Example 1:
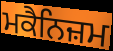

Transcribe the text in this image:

ਮਕੈਨਿਜ਼ਮ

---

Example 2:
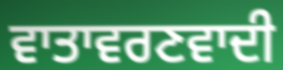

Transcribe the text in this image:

ਵਾਤਾਵਰਣਵਾਦੀ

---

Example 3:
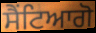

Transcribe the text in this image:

ਸੈਂਟਿਆਗੋ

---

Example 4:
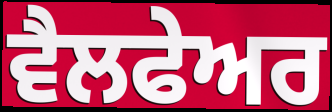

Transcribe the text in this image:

ਵੈਲਫੇਅਰ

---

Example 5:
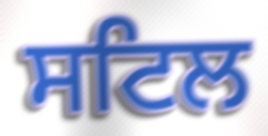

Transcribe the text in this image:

ਸਟਿਲ